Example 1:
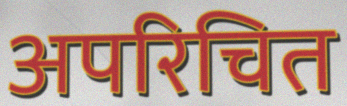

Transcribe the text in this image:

अपरिचित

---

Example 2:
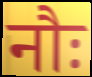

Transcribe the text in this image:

नौः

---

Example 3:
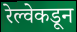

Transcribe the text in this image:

रेल्वेकडून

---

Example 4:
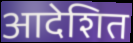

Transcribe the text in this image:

आदेशित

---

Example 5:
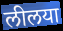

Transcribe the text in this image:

लीलया